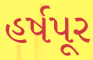
હર્ષપૂર